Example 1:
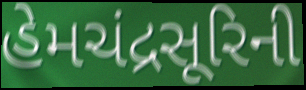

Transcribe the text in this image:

હેમચંદ્રસૂરિની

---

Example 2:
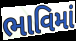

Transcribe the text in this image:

ભાવિમાં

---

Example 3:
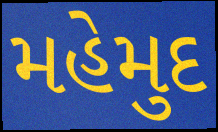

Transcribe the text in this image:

મહેમુદ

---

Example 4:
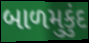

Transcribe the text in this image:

બાળમુકુંદ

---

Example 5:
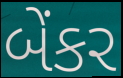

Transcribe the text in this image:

બેંકર